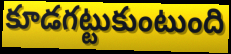
కూడగట్టుకుంటుంది